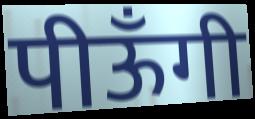
पीऊँगी